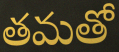
తమతో